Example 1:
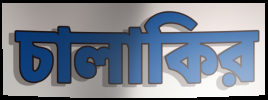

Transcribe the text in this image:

চালাকির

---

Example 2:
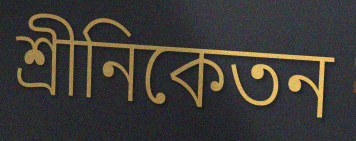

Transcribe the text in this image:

শ্রীনিকেতন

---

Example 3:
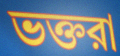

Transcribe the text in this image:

ভক্তরা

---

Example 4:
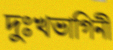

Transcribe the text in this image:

দুঃখভাগিনী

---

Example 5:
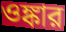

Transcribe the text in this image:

ওঙ্কার